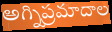
అగ్నిప్రమాదాల